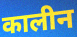
कालीन